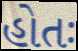
હોતઃ